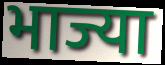
भाज्या